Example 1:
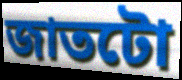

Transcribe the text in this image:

জাতটো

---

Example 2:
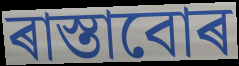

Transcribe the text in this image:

ৰাস্তাবোৰ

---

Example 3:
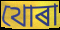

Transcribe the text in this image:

থোৰা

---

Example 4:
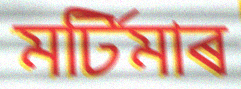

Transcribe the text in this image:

মৰ্টিমাৰ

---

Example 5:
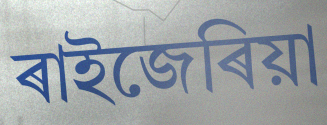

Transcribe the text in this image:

ৰাইজেৰিয়া